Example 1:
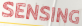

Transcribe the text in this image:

SENSING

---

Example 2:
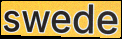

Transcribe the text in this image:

swede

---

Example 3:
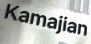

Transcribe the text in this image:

Kamajian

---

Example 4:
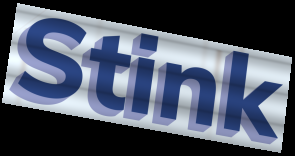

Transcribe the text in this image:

Stink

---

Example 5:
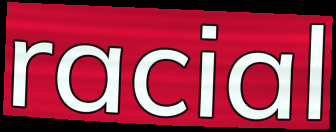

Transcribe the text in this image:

racial